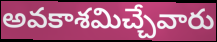
అవకాశమిచ్చేవారు